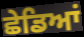
ਛੇਡਿਆਂ